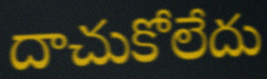
దాచుకోలేదు